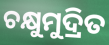
ଚକ୍ଷୁମୁଦ୍ରିତ